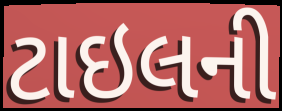
ટાઇલની